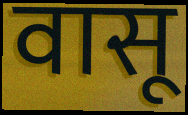
वासू